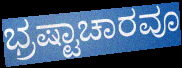
ಭ್ರಷ್ಟಾಚಾರವೂ